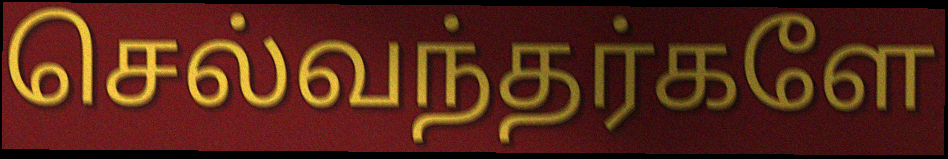
செல்வந்தர்களே